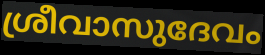
ശ്രീവാസുദേവം